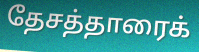
தேசத்தாரைக்